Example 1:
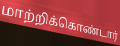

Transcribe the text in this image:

மாற்றிக்கொண்டார்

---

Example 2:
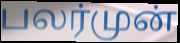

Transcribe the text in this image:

பலர்முன்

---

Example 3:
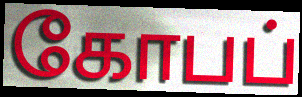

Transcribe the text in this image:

கோபப்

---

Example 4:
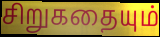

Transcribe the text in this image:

சிறுகதையும்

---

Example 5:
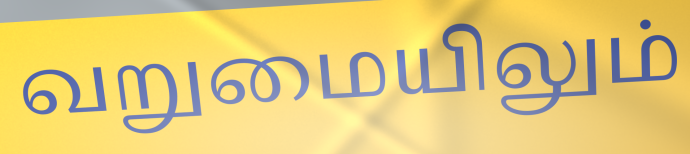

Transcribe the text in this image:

வறுமையிலும்